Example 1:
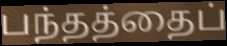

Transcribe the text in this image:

பந்தத்தைப்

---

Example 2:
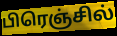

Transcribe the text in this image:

பிரெஞ்சில்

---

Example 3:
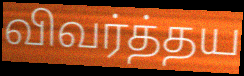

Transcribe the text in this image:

விவர்த்தய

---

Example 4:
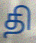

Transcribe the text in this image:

தி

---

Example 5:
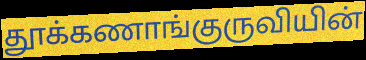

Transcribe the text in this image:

தூக்கணாங்குருவியின்